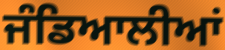
ਜੰਡਿਆਲੀਆਂ